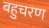
बहुचरण